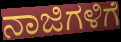
ನಾಜಿಗಳಿಗೆ